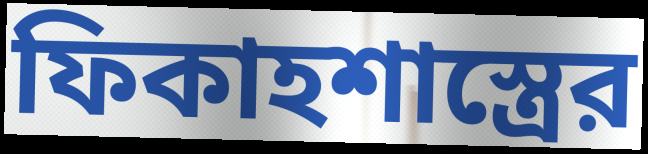
ফিকাহশাস্ত্রের